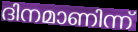
ദിനമാണിന്ന്